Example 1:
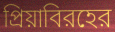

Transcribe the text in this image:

প্রিয়াবিরহের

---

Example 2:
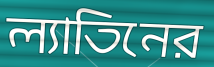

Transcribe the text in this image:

ল্যাতিনের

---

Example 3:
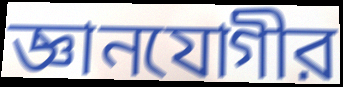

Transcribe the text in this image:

জ্ঞানযোগীর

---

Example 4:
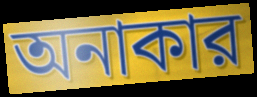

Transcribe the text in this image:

অনাকার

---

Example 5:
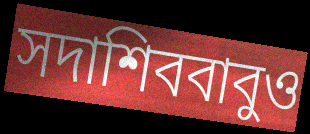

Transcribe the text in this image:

সদাশিববাবুও